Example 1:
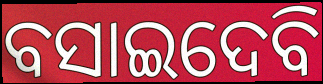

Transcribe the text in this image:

ବସାଇଦେବି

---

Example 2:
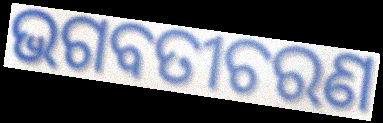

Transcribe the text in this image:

ଭଗବତୀଚରଣ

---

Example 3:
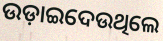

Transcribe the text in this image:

ଉଡ଼ାଇଦେଉଥିଲେ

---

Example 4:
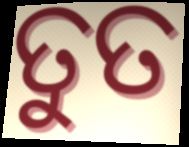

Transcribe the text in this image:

ତୁତ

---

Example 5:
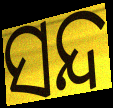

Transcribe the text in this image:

ସନ୍ଦ